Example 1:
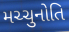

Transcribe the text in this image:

મચ્ચુનોતિ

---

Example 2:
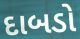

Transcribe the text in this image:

દાબડો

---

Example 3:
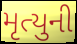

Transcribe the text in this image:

મૃત્યુની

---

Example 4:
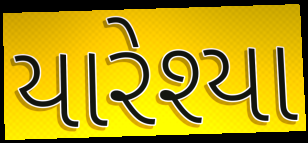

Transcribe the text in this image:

યારેશ્યા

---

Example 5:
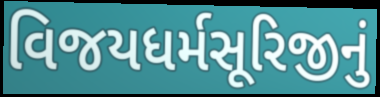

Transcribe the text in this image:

વિજયધર્મસૂરિજીનું